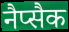
नैप्सैक